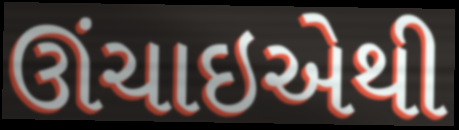
ઊંચાઇએથી